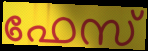
ഫേസ്